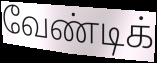
வேண்டிக்